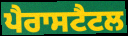
ਪੈਰਾਸਟੈਟਲ